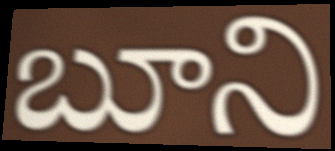
బూని